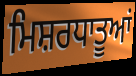
ਮਿਸ਼ਰਧਾਤੂਆਂ